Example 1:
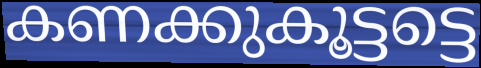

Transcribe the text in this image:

കണക്കുകൂട്ടട്ടെ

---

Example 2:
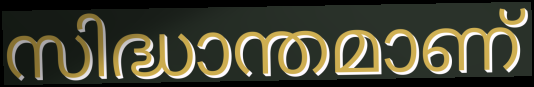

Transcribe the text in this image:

സിദ്ധാന്തമാണ്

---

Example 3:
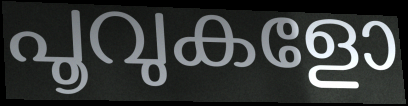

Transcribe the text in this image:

പൂവുകളോ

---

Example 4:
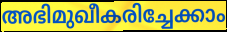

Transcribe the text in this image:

അഭിമുഖീകരിച്ചേക്കാം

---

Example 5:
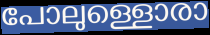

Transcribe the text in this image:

പോലുള്ളൊരാ